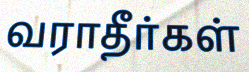
வராதீர்கள்